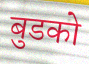
बुडको